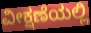
ವೀಕ್ಷಣೆಯಲ್ಲಿ